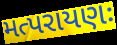
મત્પરાયણઃ